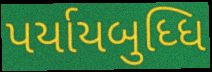
પર્યાયબુધ્ધિ